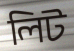
লিট